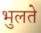
भुलते